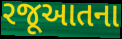
રજૂઆતના